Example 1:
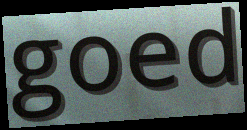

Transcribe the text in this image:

goed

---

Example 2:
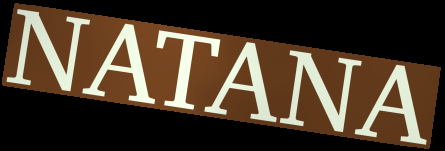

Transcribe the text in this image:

NATANA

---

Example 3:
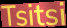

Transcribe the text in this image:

Tsitsi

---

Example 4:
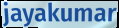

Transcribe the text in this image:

jayakumar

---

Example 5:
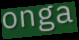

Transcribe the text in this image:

onga